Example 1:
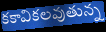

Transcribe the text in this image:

కకావికలవుతున్న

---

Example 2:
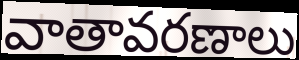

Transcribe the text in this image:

వాతావరణాలు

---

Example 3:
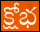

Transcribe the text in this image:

క్షోభ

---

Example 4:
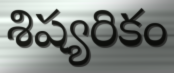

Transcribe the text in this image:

శిష్యరికం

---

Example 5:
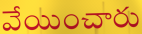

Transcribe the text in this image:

వేయించారు